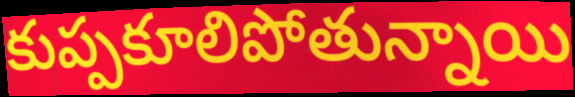
కుప్పకూలిపోతున్నాయి